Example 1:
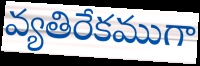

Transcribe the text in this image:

వ్యతిరేకముగా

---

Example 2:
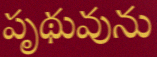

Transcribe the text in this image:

పృథువును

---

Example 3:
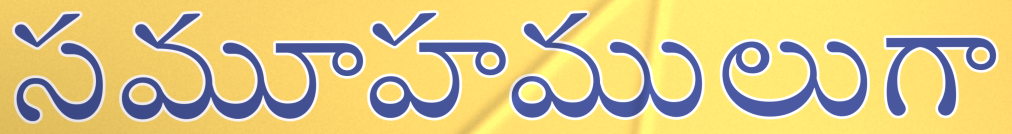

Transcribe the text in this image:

సమూహములుగా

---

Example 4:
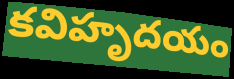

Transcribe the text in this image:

కవిహృదయం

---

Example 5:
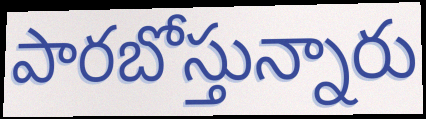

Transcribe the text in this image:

పారబోస్తున్నారు